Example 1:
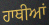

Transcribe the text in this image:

ਹਾਥੀਆਂ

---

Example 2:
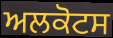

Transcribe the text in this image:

ਅਲਕੋਟਸ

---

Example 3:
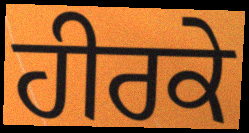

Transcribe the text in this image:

ਹੀਰਕੇ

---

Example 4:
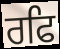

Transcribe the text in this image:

ਰਫਿ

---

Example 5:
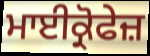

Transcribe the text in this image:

ਮਾਈਕ੍ਰੋਫੇਜ਼